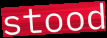
stood